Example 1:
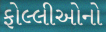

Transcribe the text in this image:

ફોલ્લીઓનો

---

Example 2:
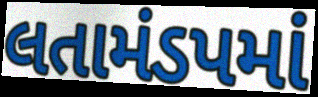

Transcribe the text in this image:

લતામંડપમાં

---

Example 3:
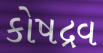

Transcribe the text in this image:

કોષદ્રવ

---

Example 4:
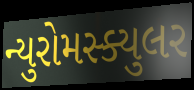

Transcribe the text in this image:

ન્યુરોમસ્ક્યુલર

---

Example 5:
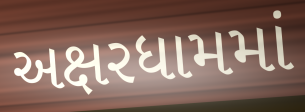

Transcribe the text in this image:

અક્ષરધામમાં